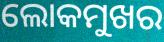
ଲୋକମୁଖର